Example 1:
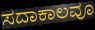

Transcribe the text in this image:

ಸದಾಕಾಲವೂ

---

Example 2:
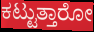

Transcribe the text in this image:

ಕಟ್ಟುತ್ತಾರೋ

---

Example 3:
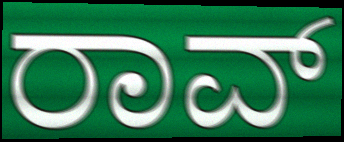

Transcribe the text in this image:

ರಾವ್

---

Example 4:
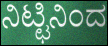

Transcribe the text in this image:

ನಿಟ್ಟಿನಿಂದ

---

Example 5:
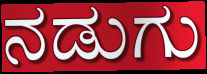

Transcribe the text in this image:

ನಡುಗು